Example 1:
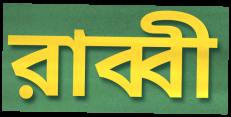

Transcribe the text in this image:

রাব্বী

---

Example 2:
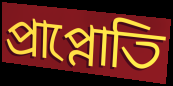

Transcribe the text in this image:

প্রাপ্নোতি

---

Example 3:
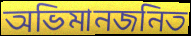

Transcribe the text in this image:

অভিমানজনিত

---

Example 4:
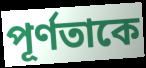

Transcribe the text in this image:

পূর্ণতাকে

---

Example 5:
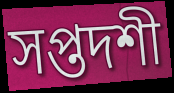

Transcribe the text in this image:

সপ্তদশী